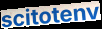
scitotenv